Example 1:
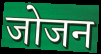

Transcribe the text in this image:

जोजन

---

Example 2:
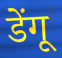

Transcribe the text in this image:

डेंगू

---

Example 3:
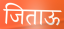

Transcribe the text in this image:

जिताऊ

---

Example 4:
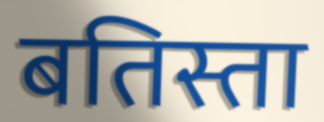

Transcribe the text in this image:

बतिस्ता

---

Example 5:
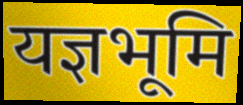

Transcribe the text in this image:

यज्ञभूमि